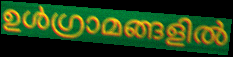
ഉൾഗ്രാമങ്ങളിൽ